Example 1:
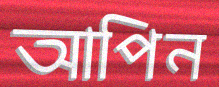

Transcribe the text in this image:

আপিন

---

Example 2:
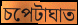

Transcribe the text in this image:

চপেটাঘাত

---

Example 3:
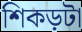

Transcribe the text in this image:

শিকড়টা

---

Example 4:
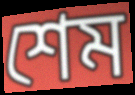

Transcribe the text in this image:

শেম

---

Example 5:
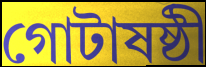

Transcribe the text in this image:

গোটাষষ্ঠী